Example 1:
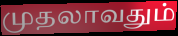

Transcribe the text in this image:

முதலாவதும்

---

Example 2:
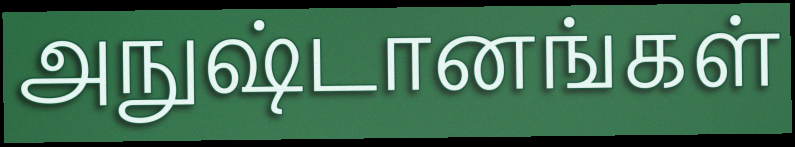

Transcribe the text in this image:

அநுஷ்டானங்கள்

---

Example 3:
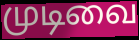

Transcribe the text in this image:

முடிவை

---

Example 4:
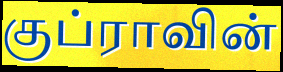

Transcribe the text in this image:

குப்ராவின்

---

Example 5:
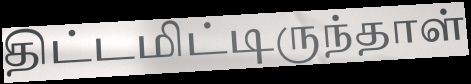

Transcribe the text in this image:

திட்டமிட்டிருந்தாள்